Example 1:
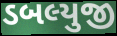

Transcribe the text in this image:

ડબલ્યુજી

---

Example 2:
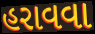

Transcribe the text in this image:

હરાવવા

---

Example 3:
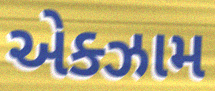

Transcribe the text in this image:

એક્ઝામ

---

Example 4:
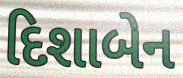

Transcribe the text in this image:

દિશાબેન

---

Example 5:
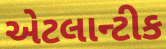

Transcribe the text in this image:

એટલાન્ટીક